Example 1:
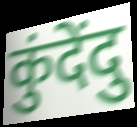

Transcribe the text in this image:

कुंदेंदु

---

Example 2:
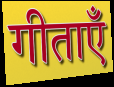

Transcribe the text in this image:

गीताएँ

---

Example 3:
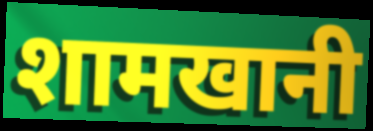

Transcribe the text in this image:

शामखानी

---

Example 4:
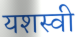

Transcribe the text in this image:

यशस्वी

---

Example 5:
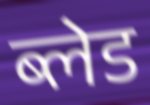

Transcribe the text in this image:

ब्लेड